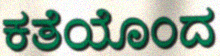
ಕತೆಯೊಂದ